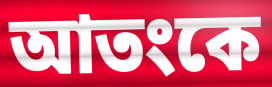
আতংকে